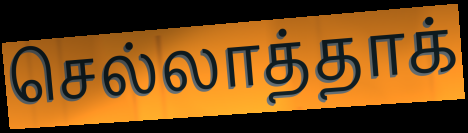
செல்லாத்தாக்